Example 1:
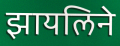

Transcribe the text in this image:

झायलिने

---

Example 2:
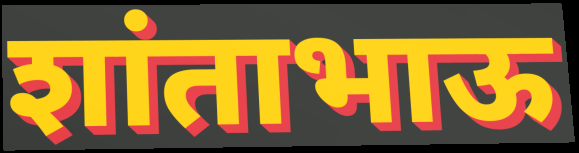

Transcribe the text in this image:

शांताभाऊ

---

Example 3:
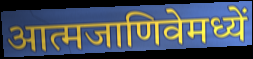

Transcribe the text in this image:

आत्मजाणिवेमध्यें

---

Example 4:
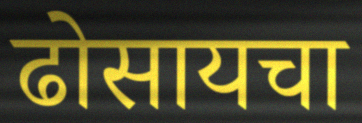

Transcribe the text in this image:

ढोसायचा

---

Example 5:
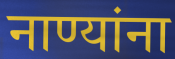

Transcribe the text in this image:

नाण्यांना